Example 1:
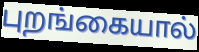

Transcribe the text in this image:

புறங்கையால்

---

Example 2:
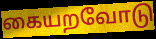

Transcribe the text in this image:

கையறவோடு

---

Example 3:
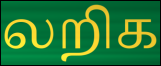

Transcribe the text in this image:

லறிக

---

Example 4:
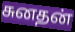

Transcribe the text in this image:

சுனதன்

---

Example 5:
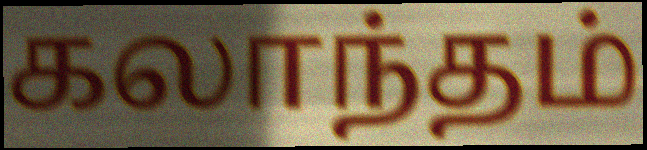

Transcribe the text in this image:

கலாந்தம்